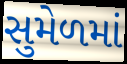
સુમેળમાં